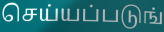
செய்யப்படுங்